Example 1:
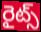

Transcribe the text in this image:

రైట్స్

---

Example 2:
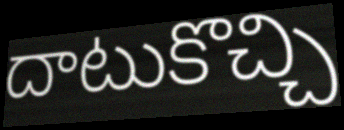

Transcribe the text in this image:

దాటుకొచ్చి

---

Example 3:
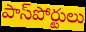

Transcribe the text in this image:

పాస్‌పోర్టులు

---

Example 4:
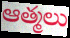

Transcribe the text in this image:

ఆత్మలు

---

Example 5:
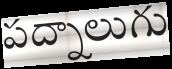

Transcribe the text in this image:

పద్నాలుగు